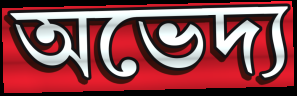
অভেদ্য